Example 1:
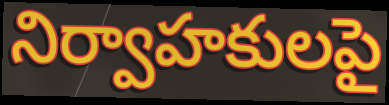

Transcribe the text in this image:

నిర్వాహకులపై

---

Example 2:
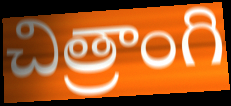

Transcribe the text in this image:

చిత్రాంగి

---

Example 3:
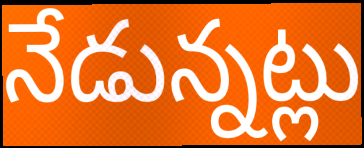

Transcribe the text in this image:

నేడున్నట్లు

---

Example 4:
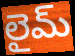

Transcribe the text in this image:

లైమ్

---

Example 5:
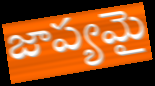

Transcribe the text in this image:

జాప్యమై